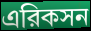
এরিকসন